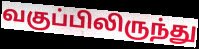
வகுப்பிலிருந்து